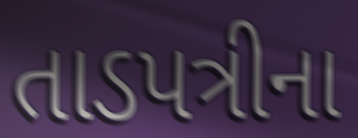
તાડપત્રીના